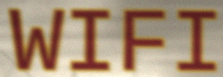
WIFI